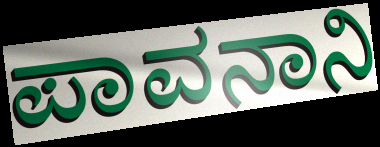
ಪಾವನಾನಿ